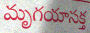
మృగయాసక్త